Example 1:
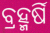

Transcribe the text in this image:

ବ୍ରହ୍ମର୍ଷି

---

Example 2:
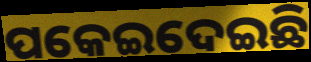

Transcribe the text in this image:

ପକେଇଦେଇଛି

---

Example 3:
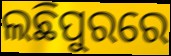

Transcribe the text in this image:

ଲଛିପୁରରେ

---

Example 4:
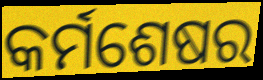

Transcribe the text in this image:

କର୍ମଶେଷର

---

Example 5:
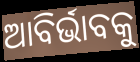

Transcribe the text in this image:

ଆବିର୍ଭାବକୁ